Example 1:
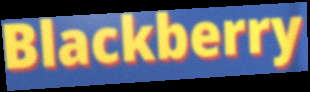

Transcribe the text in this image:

Blackberry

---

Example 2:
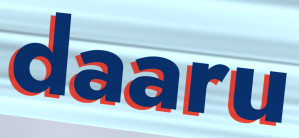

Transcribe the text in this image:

daaru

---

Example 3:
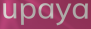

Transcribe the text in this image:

upaya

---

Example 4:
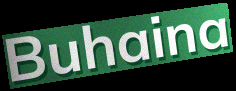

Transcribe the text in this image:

Buhaina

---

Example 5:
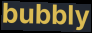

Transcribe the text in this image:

bubbly